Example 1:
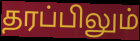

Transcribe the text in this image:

தரப்பிலும்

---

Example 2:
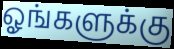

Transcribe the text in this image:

ஓங்களுக்கு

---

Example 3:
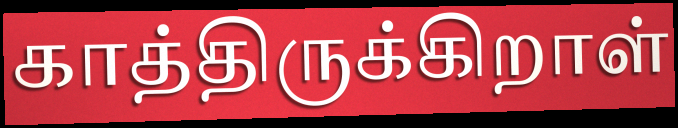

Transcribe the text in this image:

காத்திருக்கிறாள்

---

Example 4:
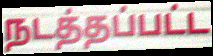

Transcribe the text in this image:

நடத்தப்பட்ட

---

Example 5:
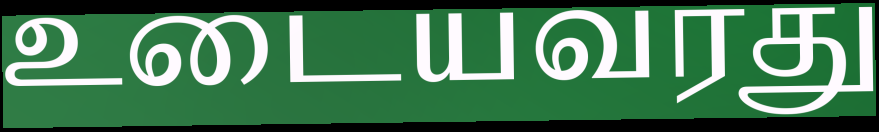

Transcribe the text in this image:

உடையவரது